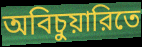
অবিচুয়ারিতে